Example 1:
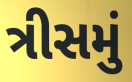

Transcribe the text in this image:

ત્રીસમું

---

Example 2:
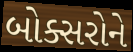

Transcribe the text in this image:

બોક્સરોને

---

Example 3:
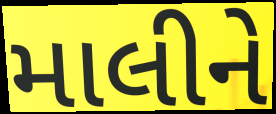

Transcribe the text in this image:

માલીને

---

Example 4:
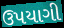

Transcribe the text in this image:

ઉપયાગી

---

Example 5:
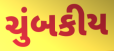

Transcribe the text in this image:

ચુંબકીય